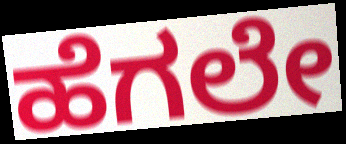
ಹೆಗಲೇ